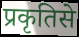
प्रकृतिसे